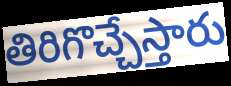
తిరిగొచ్చేస్తారు